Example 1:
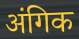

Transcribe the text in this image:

अंगिक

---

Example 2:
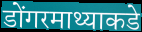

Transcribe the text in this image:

डोंगरमाथ्याकडे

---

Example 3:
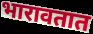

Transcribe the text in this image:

भारावतात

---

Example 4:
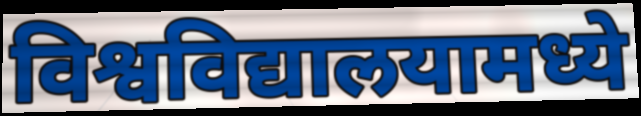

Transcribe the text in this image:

विश्वविद्यालयामध्ये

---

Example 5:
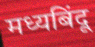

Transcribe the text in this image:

मध्यबिंदू